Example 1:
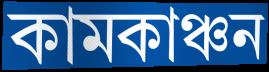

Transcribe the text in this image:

কামকাঞ্চন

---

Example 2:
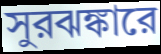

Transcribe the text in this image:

সুরঝঙ্কারে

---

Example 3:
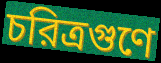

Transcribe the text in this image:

চরিত্রগুণে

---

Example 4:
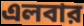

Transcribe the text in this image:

এলবার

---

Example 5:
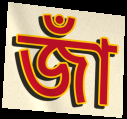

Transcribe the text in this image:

জাঁ